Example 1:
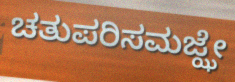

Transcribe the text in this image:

ಚತುಪರಿಸಮಜ್ಝೇ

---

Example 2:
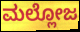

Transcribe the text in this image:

ಮಲ್ಲೋಜ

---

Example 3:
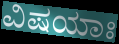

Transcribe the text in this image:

ವಿಷಯಾಃ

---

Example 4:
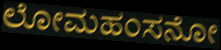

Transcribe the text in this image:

ಲೋಮಹಂಸನೋ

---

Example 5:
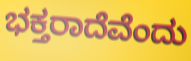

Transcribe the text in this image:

ಭಕ್ತರಾದೆವೆಂದು